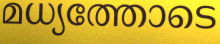
മധ്യത്തോടെ